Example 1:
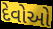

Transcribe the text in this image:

દેવોઓ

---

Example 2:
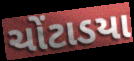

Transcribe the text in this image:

ચોંટાડયા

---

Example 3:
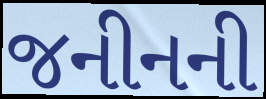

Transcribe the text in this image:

જનીનની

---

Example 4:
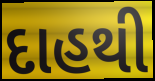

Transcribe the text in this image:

દાહથી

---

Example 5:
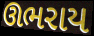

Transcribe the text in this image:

ઊભરાય